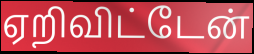
ஏறிவிட்டேன்